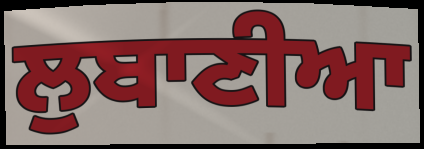
ਲੁਬਾਣੀਆ